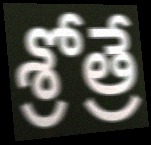
శ్రోత్రే